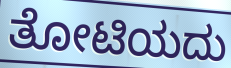
ತೋಟಿಯದು